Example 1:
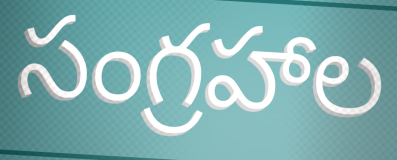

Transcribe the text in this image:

సంగ్రహాల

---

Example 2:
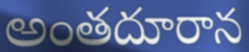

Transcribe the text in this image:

అంతదూరాన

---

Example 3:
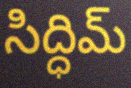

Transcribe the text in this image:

సిద్ధిమ్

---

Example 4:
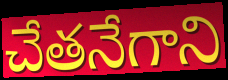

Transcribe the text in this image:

చేతనేగాని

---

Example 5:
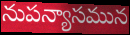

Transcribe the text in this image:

నుపన్యాసమున